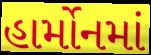
હાર્મોનમાં